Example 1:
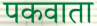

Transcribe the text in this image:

पकवाता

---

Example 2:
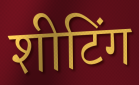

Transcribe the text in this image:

शीटिंग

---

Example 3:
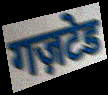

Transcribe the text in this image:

गज़टेड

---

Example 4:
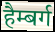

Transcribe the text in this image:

हैम्बर्ग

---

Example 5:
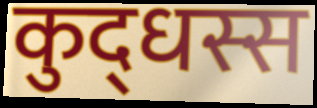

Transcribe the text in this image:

कुद्धस्स